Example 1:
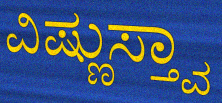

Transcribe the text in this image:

ವಿಷ್ಣುಸ್ತ್ವಾ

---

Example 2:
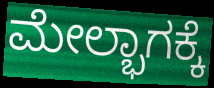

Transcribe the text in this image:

ಮೇಲ್ಭಾಗಕ್ಕೆ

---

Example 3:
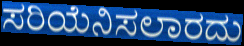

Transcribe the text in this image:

ಸರಿಯೆನಿಸಲಾರದು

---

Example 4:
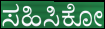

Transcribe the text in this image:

ಸಹಿಸಿಕೋ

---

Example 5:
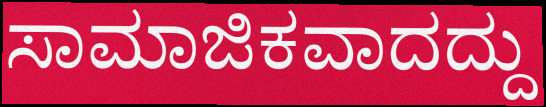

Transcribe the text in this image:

ಸಾಮಾಜಿಕವಾದದ್ದು